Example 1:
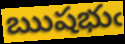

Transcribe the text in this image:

ఋషభుఁ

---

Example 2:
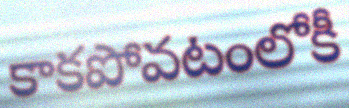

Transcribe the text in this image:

కాకపోవటంలోకీ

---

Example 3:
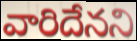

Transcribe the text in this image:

వారిదేనని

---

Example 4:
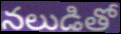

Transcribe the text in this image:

నలుడితో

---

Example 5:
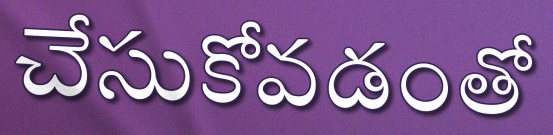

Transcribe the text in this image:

చేసుకోవడంతో